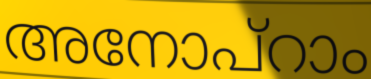
അനോപ്റാം